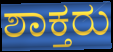
ಶಾಕ್ತರು